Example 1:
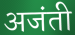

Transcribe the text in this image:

अजंती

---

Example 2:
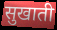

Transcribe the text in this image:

सुखाती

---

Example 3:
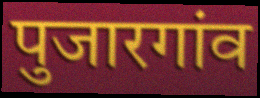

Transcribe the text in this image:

पुजारगांव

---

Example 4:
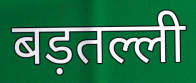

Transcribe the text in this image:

बड़तल्ली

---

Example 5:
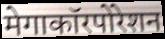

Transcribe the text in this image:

मेगाकॉरपोरेशन